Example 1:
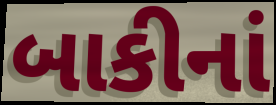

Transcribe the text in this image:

બાકીનાં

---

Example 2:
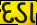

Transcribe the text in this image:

દડા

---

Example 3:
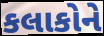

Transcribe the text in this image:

કલાકોને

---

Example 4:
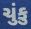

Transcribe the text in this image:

ચુંકુ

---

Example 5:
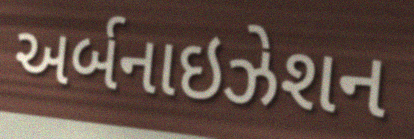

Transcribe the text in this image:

અર્બનાઇઝેશન